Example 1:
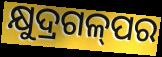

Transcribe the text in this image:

କ୍ଷୁଦ୍ରଗଳ୍‌ପର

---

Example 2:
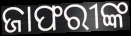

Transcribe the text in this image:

ଜାଫରୀଙ୍କ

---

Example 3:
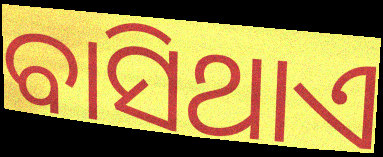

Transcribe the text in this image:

ବାସିଥାଏ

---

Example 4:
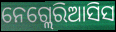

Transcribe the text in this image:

ନେଗ୍ଲେରିଆସିସ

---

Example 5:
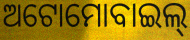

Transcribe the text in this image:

ଅଟୋମୋବାଇଲ୍